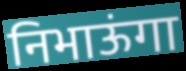
निभाऊंगा